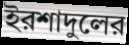
ইরশাদুলের